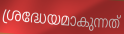
ശ്രദ്ധേയമാകുന്നത്